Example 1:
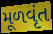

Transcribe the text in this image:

મૂળવૃંત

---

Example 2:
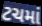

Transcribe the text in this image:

ટચમાં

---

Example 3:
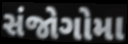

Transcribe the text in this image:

સંજોગોમા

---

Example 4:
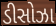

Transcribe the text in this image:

ડીસોઝા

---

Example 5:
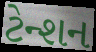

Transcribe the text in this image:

ટેન્શન